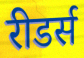
रीडर्स